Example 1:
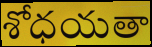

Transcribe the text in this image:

శోధయతా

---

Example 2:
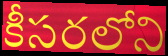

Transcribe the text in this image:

కీసరలోని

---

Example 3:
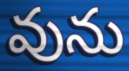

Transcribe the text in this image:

వును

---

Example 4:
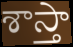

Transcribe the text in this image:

శాస్తా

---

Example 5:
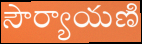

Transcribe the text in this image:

సౌర్యాయణి